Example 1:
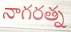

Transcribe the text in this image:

నాగరత్న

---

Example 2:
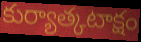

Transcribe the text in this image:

కుర్యాత్కటాక్షం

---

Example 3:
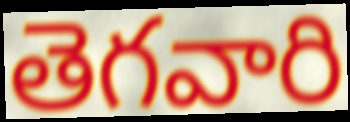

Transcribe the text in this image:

తెగవారి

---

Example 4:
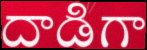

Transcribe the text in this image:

దాడిగా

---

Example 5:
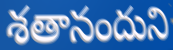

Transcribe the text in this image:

శతానందుని